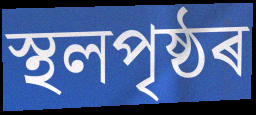
স্থলপৃষ্ঠৰ